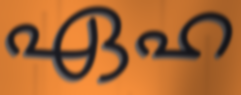
ഏഹ